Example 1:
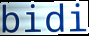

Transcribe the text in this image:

bidi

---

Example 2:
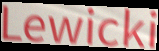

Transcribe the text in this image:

Lewicki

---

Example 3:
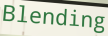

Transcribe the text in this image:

Blending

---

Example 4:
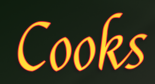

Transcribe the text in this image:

Cooks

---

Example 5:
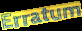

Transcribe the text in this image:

Erratum